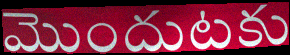
మొందుటకు